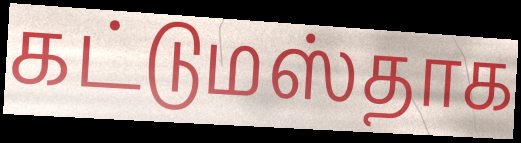
கட்டுமஸ்தாக